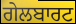
ਗੇਲਬਾਰਟ